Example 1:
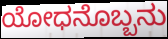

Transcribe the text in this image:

ಯೋಧನೊಬ್ಬನು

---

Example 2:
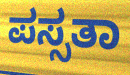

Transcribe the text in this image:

ಪಸ್ಸತಾ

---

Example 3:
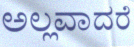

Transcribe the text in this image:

ಅಲ್ಲವಾದರೆ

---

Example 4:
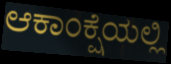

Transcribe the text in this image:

ಆಕಾಂಕ್ಷೆಯಲ್ಲಿ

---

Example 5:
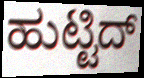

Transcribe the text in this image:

ಹುಟ್ಟಿದ್